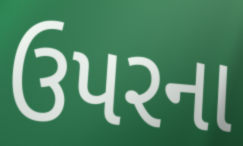
ઉપરના